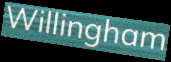
Willingham